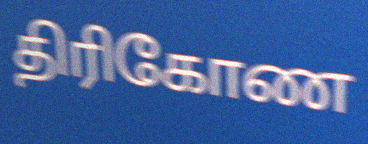
திரிகோண